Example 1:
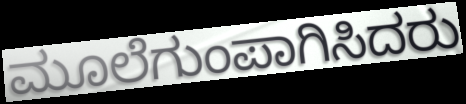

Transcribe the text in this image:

ಮೂಲೆಗುಂಪಾಗಿಸಿದರು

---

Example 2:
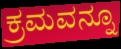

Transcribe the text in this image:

ಕ್ರಮವನ್ನೂ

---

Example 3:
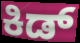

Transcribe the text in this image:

ಕಿಡ್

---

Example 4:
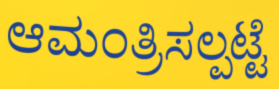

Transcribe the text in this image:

ಆಮಂತ್ರಿಸಲ್ಪಟ್ಟೆ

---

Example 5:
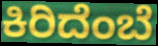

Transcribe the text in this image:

ಕಿರಿದೆಂಬೆ